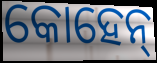
କୋହେନ୍